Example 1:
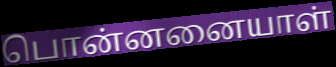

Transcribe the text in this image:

பொன்னனையாள்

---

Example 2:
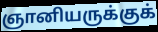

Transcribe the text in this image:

ஞானியருக்குக்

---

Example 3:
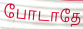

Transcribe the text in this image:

போடாதே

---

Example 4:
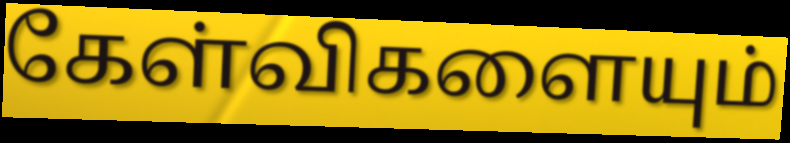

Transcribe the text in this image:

கேள்விகளையும்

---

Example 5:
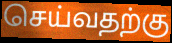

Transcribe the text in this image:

செய்வதற்கு